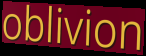
oblivion